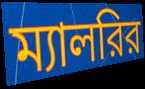
ম্যালরির